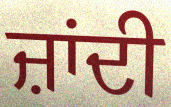
ਜ਼ਾਂਦੀ